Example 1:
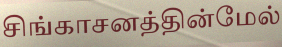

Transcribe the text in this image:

சிங்காசனத்தின்மேல்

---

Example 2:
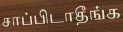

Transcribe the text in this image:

சாப்பிடாதீங்க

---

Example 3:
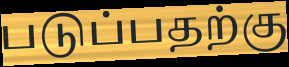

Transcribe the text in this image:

படுப்பதற்கு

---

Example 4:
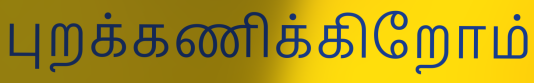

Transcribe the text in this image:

புறக்கணிக்கிறோம்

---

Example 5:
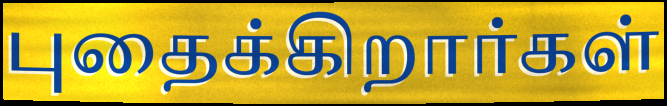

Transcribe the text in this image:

புதைக்கிறார்கள்